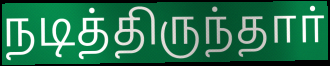
நடித்திருந்தார்